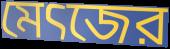
মেৎজের